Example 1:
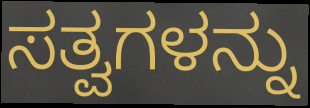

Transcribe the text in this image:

ಸತ್ವಗಳನ್ನು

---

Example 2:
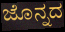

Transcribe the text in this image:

ಜೊನ್ನದ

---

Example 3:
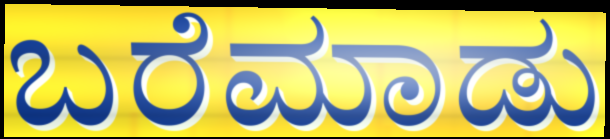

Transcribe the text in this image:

ಬರೆಮಾಡು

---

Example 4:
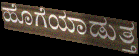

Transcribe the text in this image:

ಹೊಗೆಯಾಡುತ್ತ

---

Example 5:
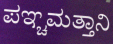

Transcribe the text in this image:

ಪಞ್ಚಮತ್ತಾನಿ